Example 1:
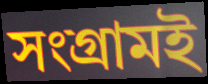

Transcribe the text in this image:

সংগ্রামই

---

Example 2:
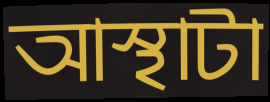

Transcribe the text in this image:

আস্থাটা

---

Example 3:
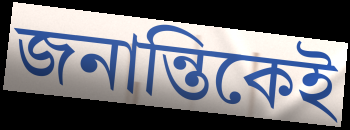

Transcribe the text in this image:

জনান্তিকেই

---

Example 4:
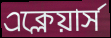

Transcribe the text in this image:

এক্লেয়ার্স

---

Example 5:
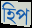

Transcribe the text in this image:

হিপ